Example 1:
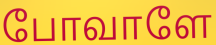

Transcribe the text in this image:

போவாளே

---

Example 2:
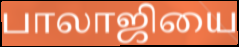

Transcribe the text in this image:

பாலாஜியை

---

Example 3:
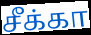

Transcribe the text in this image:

சீக்கா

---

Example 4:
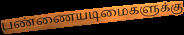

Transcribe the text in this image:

பண்ணையடிமைகளுக்கு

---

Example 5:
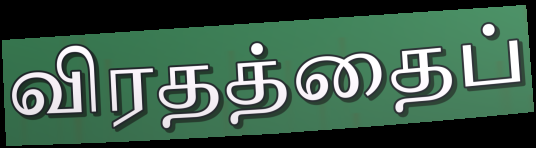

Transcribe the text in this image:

விரதத்தைப்